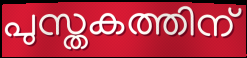
പുസ്തകത്തിന്